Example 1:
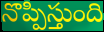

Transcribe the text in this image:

నొప్పిస్తుంది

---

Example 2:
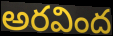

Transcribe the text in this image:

అరవింద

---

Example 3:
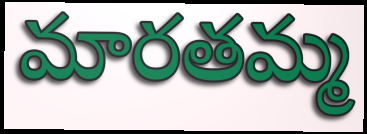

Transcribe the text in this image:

మారతమ్మ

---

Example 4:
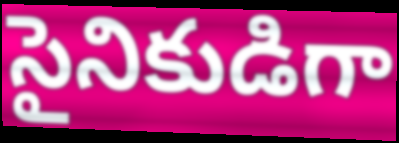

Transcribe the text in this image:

సైనికుడిగా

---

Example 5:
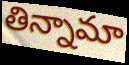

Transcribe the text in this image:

తిన్నామా